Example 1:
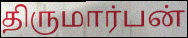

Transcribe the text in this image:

திருமார்பன்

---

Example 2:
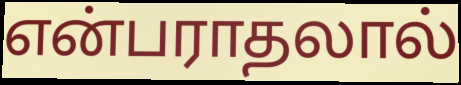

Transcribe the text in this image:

என்பராதலால்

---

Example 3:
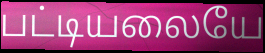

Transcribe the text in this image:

பட்டியலையே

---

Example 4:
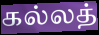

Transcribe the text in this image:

கல்லத்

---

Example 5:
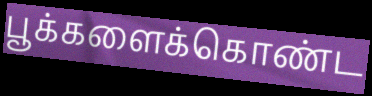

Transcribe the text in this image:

பூக்களைக்கொண்ட